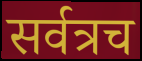
सर्वत्रच